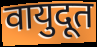
वायुदूत